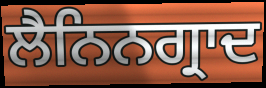
ਲੈਨਿਨਗ੍ਰਾਦ